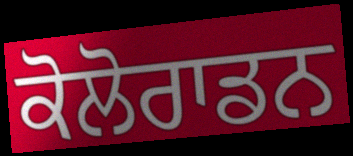
ਕੋਲੋਰਾਡਨ